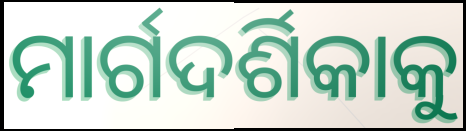
ମାର୍ଗଦର୍ଶିକାକୁ